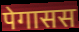
पेगासस